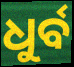
ଧୁର୍ବ